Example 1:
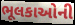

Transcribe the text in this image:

ભૂલકાઓની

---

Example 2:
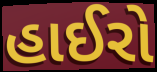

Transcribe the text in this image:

હાઈરો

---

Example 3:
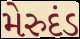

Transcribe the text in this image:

મેરુદંડ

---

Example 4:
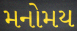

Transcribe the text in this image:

મનોમય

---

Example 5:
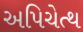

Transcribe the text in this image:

અપિચેત્થ